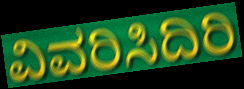
ವಿವರಿಸಿದಿರಿ